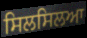
ਸਿਲਸਿਲਆ